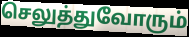
செலுத்துவோரும்